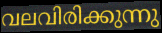
വലവിരിക്കുന്നു